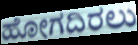
ಹೋಗದಿರಲು